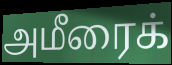
அமீரைக்